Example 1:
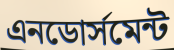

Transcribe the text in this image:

এনডোর্সমেন্ট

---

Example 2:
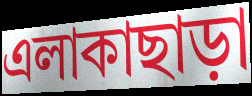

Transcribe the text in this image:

এলাকাছাড়া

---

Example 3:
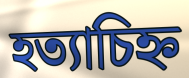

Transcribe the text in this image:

হত্যাচিহ্ন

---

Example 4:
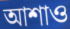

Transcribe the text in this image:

আশাও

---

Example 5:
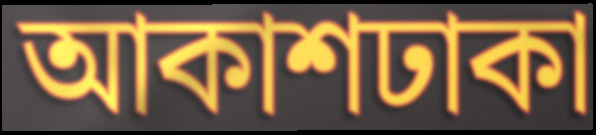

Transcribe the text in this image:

আকাশঢাকা